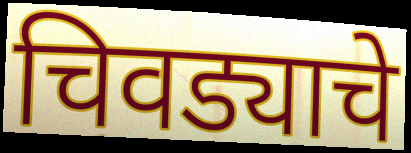
चिवड्याचे